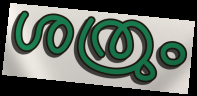
ശത്രും